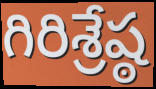
గిరిశ్రేష్ఠ